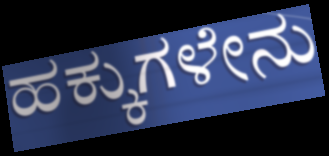
ಹಕ್ಕುಗಳೇನು